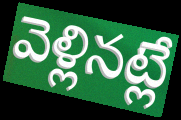
వెళ్లినట్లే